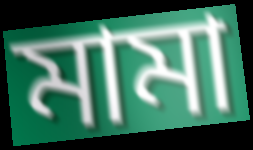
মামা